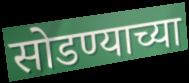
सोडण्याच्या